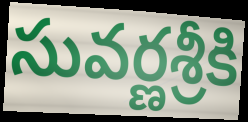
సువర్ణశ్రీకి